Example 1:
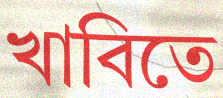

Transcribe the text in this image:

খাবিতে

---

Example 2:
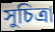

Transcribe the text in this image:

সুচিত্রা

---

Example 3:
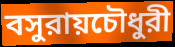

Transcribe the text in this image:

বসুরায়চৌধুরী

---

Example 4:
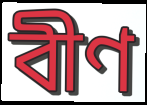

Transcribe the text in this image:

বীণ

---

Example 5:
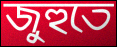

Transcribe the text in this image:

জুহুতে